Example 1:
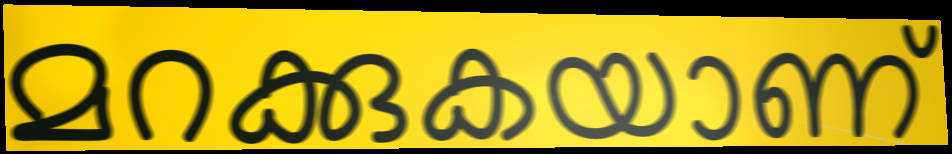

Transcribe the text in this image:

മറക്കുകയാണ്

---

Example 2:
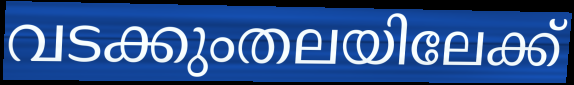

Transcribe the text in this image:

വടക്കുംതലയിലേക്ക്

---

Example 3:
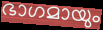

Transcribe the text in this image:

ഭാഗമായും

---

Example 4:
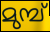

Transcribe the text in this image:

മുമ്പ്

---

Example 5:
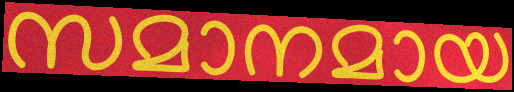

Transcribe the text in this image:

സമാനമായ